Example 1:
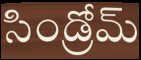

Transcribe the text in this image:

సిండ్రోమ్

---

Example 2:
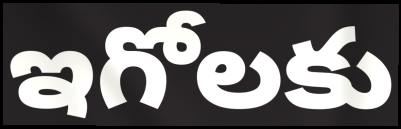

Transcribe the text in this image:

ఇగోలకు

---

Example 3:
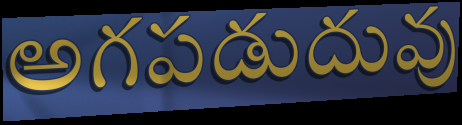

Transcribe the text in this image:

అగపడుదువు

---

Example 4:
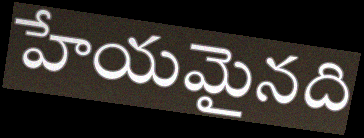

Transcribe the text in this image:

హేయమైనది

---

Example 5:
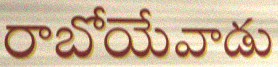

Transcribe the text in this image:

రాబోయేవాడు